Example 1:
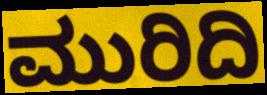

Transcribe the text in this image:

ಮುರಿದಿ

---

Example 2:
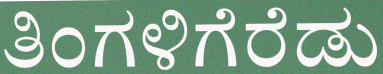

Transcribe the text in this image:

ತಿಂಗಳಿಗೆರೆಡು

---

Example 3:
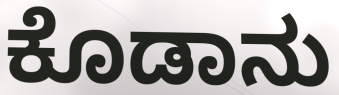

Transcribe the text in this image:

ಕೊಡಾನು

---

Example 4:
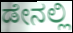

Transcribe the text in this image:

ಡೇನಲ್ಲಿ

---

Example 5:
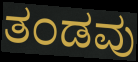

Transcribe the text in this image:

ತಂಡವು